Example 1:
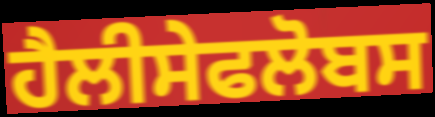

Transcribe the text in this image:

ਹੈਲੀਸੇਫਲੋਬਸ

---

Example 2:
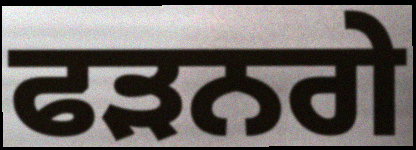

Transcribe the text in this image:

ਫੜਨਗੇ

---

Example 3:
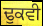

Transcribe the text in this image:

ਢੁਕਵੀ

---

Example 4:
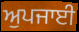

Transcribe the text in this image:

ਅੁਪਜਾਈ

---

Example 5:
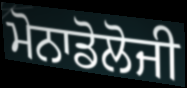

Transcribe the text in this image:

ਮੋਨਾਡੋਲੋਜੀ